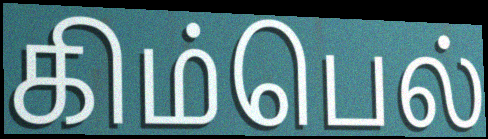
கிம்பெல்